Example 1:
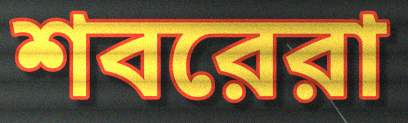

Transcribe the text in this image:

শবরেরা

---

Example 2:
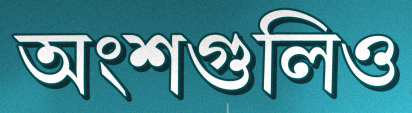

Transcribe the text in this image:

অংশগুলিও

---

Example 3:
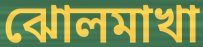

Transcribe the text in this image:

ঝোলমাখা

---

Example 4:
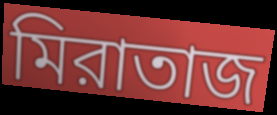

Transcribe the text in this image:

মিরাতাজ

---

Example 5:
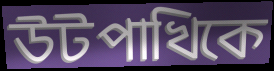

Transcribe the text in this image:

উটপাখিকে